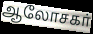
ஆலோசகர்